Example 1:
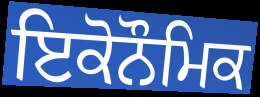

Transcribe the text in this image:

ਇਕੋਨੌਮਿਕ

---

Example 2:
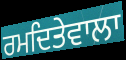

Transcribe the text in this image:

ਰਮਦਿਤੇਵਾਲਾ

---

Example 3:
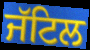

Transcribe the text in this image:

ਜੱਟਿਲ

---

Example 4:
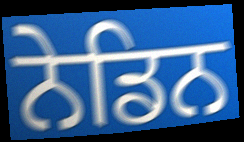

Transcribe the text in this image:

ਨੇਡਿਨ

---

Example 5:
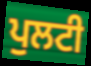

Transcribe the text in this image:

ਪੁਲਟੀ